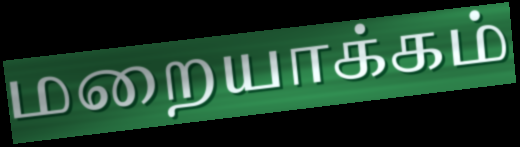
மறையாக்கம்